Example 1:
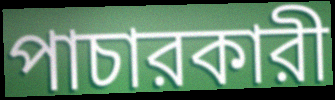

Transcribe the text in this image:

পাচারকারী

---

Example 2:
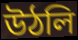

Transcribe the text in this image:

উঠলি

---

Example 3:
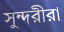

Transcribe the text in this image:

সুন্দরীরা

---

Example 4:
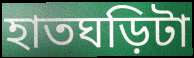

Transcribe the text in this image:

হাতঘড়িটা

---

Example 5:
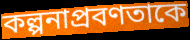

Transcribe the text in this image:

কল্পনাপ্রবণতাকে